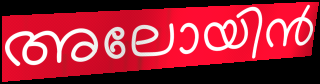
അലോയിൻ